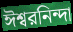
ঈশ্বরনিন্দা